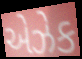
એઝેક